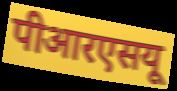
पीआरएसयू